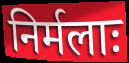
निर्मलाः